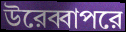
উরেব্বাপরে